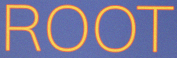
ROOT